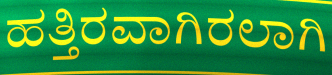
ಹತ್ತಿರವಾಗಿರಲಾಗಿ